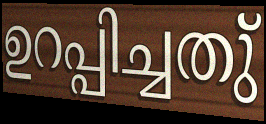
ഉറപ്പിച്ചതു്